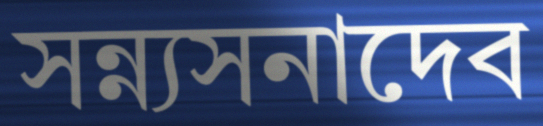
সন্ন্যসনাদেব